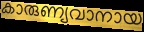
കാരുണ്യവാനായ